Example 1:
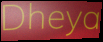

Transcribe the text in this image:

Dheya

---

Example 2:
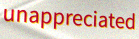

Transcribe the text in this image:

unappreciated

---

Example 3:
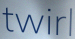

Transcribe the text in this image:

twirl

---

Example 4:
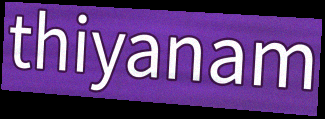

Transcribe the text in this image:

thiyanam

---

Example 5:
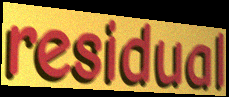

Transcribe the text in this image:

residual